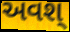
અવશ્